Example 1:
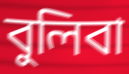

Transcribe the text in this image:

বুলিবা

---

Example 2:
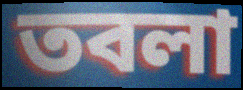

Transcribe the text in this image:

তবলা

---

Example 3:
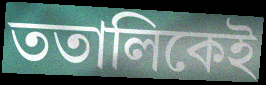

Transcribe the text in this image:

ততালিকেই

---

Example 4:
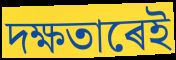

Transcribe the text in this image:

দক্ষতাৰেই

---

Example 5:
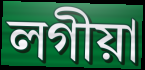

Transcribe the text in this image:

লগীয়া